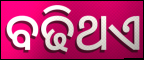
ବଢିଥଏ